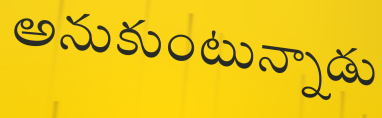
అనుకుంటున్నాడు